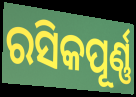
ରସିକପୂର୍ଣ୍ଣ